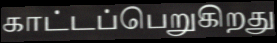
காட்டப்பெறுகிறது